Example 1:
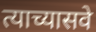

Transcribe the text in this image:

त्याच्यासवे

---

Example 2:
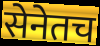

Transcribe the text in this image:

सेनेतच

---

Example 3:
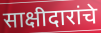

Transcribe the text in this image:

साक्षीदारांचे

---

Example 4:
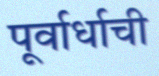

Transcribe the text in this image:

पूर्वार्धाची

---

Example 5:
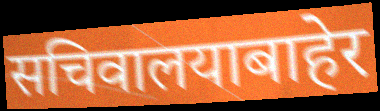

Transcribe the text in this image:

सचिवालयाबाहेर